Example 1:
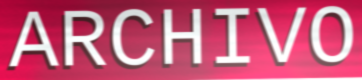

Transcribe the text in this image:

ARCHIVO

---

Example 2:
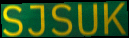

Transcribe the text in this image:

SJSUK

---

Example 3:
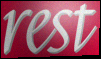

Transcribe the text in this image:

rest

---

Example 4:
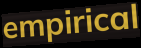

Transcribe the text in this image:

empirical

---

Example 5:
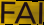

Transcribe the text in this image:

FAI